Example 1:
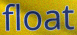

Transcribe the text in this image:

float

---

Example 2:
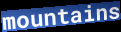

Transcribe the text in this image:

mountains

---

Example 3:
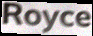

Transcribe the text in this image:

Royce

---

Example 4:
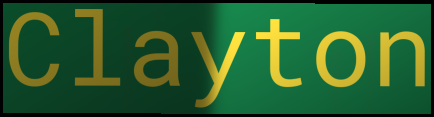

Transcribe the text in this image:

Clayton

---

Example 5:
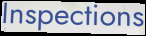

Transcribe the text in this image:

Inspections